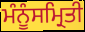
ਮੰਨੂੰਸਮ੍ਰਿਤੀ